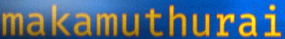
makamuthurai